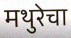
मथुरेचा